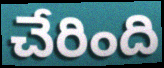
చేరింది